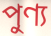
পুণ্য